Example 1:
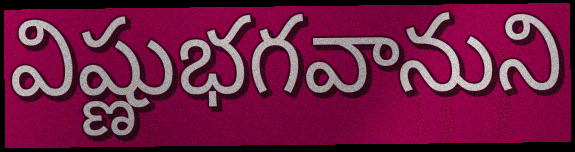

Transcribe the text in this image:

విష్ణుభగవానుని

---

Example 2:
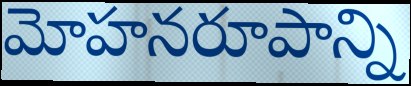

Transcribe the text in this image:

మోహనరూపాన్ని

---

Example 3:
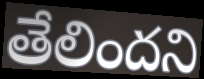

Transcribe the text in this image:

తేలిందని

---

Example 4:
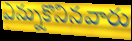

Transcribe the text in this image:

ఎన్నుకొనినవారు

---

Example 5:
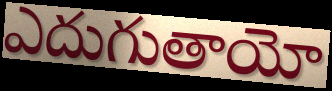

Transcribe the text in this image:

ఎదుగుతాయో